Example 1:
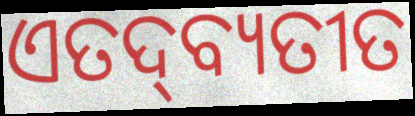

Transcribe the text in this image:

ଏତଦ୍‌ବ୍ୟତୀତ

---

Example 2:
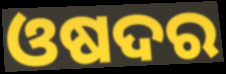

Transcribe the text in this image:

ଓଷଦର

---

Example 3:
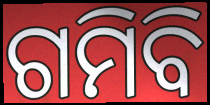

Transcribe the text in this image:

ଗମିବି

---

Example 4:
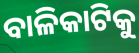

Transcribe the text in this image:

ବାଳିକାଟିକୁ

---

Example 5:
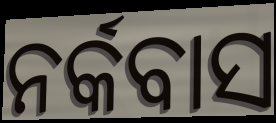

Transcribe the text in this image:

ନର୍କବାସ